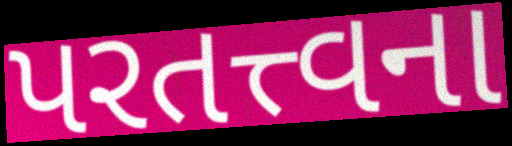
પરતત્ત્વના